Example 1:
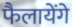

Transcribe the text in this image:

फैलायेंगे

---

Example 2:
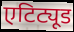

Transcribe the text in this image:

एटिट्यूड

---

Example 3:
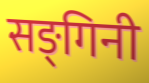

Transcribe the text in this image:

सङ्गिनी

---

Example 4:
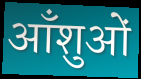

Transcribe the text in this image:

आँशुओं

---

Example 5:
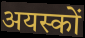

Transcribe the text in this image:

अयस्कों